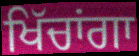
ਖਿੱਚਾਂਗਾ